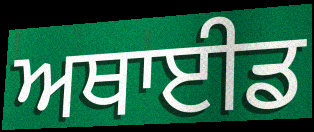
ਅਥਾਈਡ